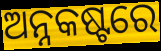
ଅନ୍ନକଷ୍ଟରେ